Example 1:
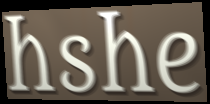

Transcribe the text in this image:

hshe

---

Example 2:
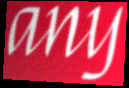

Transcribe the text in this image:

any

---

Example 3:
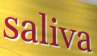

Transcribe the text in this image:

saliva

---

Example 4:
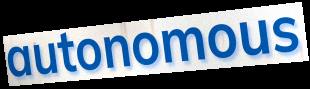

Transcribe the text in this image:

autonomous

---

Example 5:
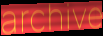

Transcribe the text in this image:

archive